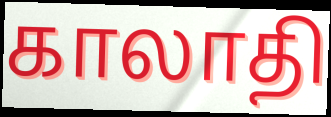
காலாதி